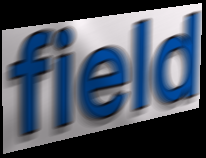
field